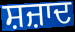
ਸ਼ਜ਼ਾਦ